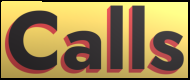
Calls